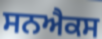
ਸਨਐਕਸ